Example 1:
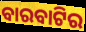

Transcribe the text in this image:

ବାରବାଟିର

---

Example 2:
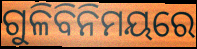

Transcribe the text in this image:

ଗୁଳିବିନିମୟରେ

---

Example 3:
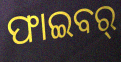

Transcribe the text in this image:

ଫାଇବର୍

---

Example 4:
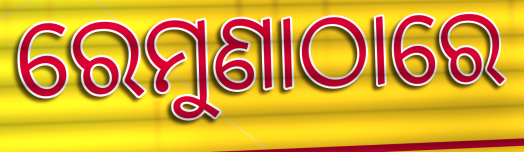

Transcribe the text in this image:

ରେମୁଣାଠାରେ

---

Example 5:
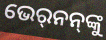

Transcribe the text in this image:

ଭେର୍‍ନନ୍‌ଙ୍କୁ